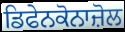
ਡਿਫੇਨਕੋਨਾਜ਼ੋਲ